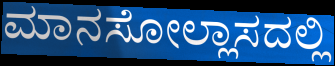
ಮಾನಸೋಲ್ಲಾಸದಲ್ಲಿ